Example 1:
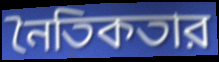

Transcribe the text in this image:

নৈতিকতার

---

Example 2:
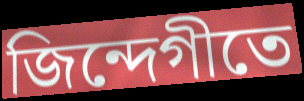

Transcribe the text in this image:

জিন্দেগীতে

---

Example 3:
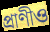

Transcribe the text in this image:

প্রাণীও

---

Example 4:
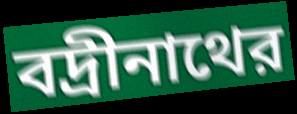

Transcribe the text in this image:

বদ্রীনাথের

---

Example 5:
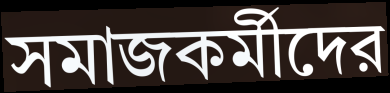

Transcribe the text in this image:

সমাজকর্মীদের